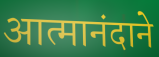
आत्मानंदाने